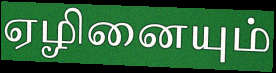
ஏழினையும்